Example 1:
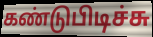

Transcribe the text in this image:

கண்டுபிடிச்சு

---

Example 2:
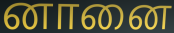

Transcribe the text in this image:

னானை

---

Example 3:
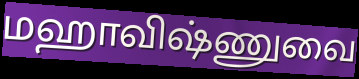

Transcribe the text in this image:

மஹாவிஷ்ணுவை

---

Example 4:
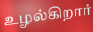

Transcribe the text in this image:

உழல்கிறார்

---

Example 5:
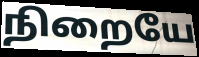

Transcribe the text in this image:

நிறையே